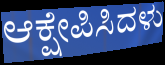
ಆಕ್ಷೇಪಿಸಿದಳು